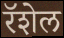
रॅशेल